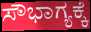
ಸೌಭಾಗ್ಯಕ್ಕೆ